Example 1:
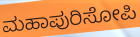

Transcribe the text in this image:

ಮಹಾಪುರಿಸೋಪಿ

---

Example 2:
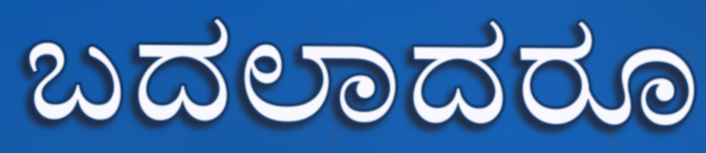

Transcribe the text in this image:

ಬದಲಾದರೂ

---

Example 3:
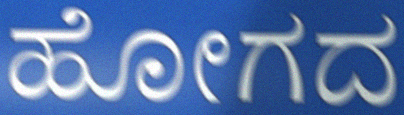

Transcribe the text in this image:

ಹೋಗದ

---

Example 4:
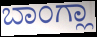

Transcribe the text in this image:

ಬಾಂಗ್ಲಾ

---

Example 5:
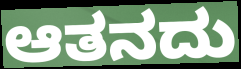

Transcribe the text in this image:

ಆತನದು